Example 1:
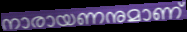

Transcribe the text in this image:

നാരായണനുമാണ്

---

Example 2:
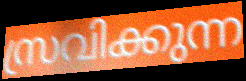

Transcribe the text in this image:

സ്രവിക്കുന്ന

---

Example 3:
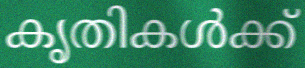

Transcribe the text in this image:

കൃതികൾക്ക്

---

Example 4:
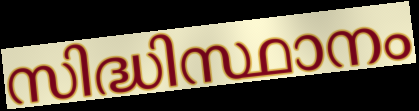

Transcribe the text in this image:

സിദ്ധിസ്ഥാനം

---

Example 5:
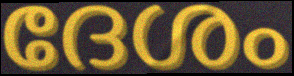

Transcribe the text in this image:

ദേശം